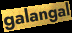
galangal